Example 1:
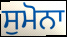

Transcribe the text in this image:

ਸੁਮੋਨਾ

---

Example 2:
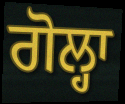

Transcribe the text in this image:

ਗੋਲ੍ਹਾ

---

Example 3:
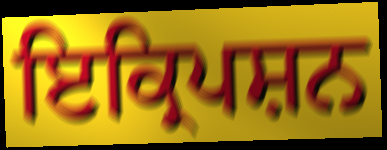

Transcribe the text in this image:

ਇਕ੍ਰਿਪਸ਼ਨ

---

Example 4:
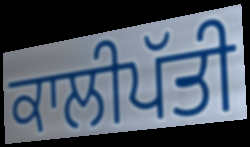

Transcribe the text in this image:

ਕਾਲੀਪੱਤੀ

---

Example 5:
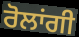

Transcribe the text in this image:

ਰੋਲਾਂਗੀ